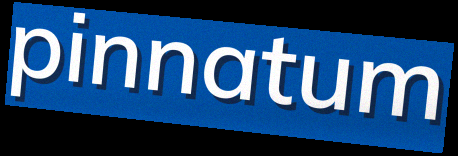
pinnatum